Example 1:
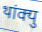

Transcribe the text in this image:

थांक्यु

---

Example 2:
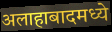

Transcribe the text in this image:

अलाहाबादमध्ये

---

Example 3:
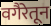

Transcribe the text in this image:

वगैरेतून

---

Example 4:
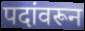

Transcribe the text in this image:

पदांवरून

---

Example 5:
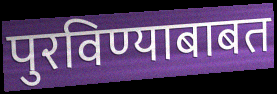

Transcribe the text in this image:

पुरविण्याबाबत